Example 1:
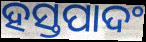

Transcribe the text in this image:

ହସ୍ତପାଦଂ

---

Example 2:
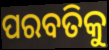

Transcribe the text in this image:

ପରବତିକୁ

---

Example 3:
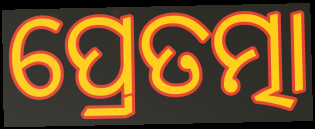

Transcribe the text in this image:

ପ୍ରେତତ୍ମା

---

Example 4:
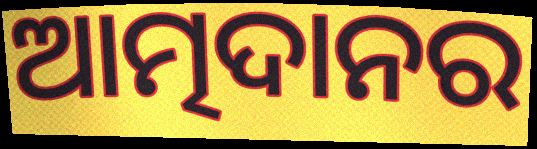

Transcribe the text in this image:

ଆତ୍ମଦାନର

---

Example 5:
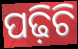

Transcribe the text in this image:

ପଢ଼ିଚି